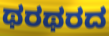
ಥರಥರದ